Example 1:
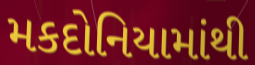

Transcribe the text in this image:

મકદોનિયામાંથી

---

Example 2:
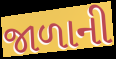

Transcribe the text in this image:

જાળાની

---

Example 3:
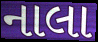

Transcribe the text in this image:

નાલા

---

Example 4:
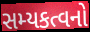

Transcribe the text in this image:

સમ્યકત્વનો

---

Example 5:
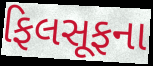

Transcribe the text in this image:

ફિલસૂફના